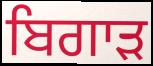
ਬਿਗਾੜ